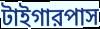
টাইগারপাস